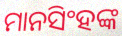
ମାନସିଂହଙ୍କ